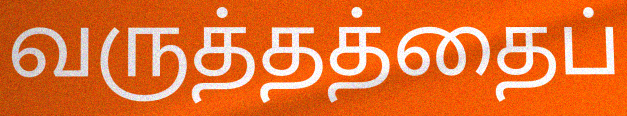
வருத்தத்தைப்